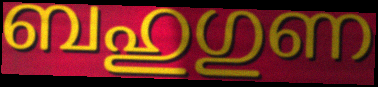
ബഹുഗുണ